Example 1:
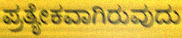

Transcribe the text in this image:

ಪ್ರತ್ಯೇಕವಾಗಿರುವುದು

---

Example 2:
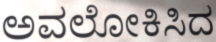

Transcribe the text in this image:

ಅವಲೋಕಿಸಿದ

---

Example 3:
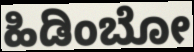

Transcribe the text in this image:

ಹಿಡಿಂಬೋ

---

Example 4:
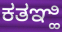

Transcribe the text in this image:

ಕತಞ್ಹಿ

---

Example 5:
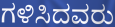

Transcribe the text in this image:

ಗಳಿಸಿದವರು